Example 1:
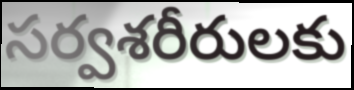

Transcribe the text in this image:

సర్వశరీరులకు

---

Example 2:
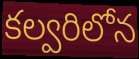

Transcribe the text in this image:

కల్వరిలోన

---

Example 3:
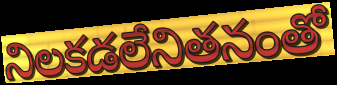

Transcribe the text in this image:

నిలకడలేనితనంతో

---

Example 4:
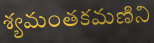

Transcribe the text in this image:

శ్యమంతకమణిని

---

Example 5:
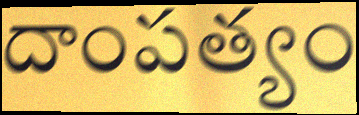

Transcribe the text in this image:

దాంపత్యం